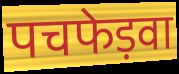
पचफेड़वा